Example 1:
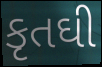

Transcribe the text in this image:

કૃતઘી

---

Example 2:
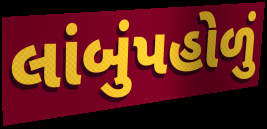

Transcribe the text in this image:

લાંબુંપહોળું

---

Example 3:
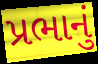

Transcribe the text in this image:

પ્રભાનું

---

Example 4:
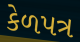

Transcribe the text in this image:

કેળપત્ર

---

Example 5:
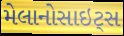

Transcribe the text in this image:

મેલાનોસાઇટ્સ